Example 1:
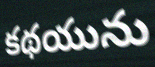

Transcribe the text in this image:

కథయును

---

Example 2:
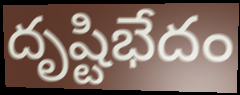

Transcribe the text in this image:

దృష్టిభేదం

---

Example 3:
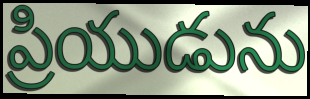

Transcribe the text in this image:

ప్రియుడును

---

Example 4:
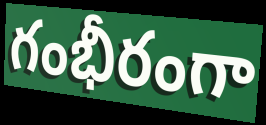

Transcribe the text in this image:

గంభీరంగా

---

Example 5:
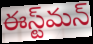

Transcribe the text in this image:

ఈస్ట్‌మన్